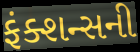
ફંક્શન્સની